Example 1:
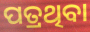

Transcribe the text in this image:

ପତ୍ରଥିବା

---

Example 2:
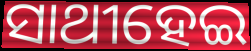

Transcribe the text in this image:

ସାଥୀହେଇ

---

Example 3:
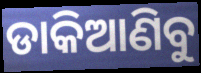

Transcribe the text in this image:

ଡାକିଆଣିବୁ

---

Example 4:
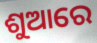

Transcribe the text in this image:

ଶୁଆରେ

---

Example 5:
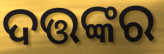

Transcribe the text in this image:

ଦତ୍ତଙ୍କର